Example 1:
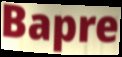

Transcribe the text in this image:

Bapre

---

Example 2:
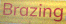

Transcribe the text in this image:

Brazing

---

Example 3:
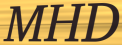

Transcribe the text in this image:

MHD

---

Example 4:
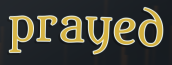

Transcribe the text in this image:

prayed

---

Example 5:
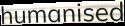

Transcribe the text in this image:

humanised